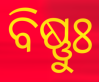
ବିଷ୍ଣୁଃ